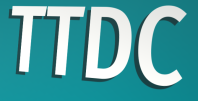
TTDC